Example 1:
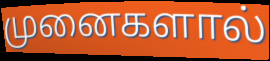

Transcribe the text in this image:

முனைகளால்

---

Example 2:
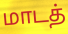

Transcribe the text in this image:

மாடத்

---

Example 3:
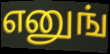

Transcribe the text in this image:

எனுங்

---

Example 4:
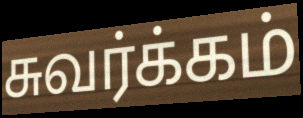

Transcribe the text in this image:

சுவர்க்கம்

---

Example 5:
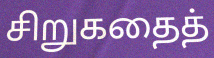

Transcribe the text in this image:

சிறுகதைத்